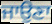
ਜਾਉਣਾ